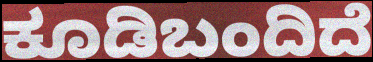
ಕೂಡಿಬಂದಿದೆ